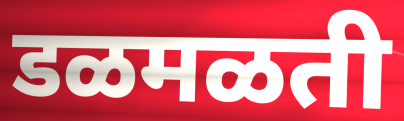
डळमळती